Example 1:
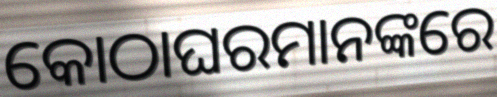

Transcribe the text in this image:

କୋଠାଘରମାନଙ୍କରେ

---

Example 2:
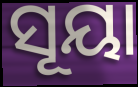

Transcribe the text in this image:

ସୂୟା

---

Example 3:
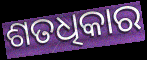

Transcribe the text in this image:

ଶତଧିକାର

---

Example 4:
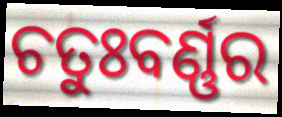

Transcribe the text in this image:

ଚତୁଃବର୍ଣ୍ଣର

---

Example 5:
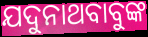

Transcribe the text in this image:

ଯଦୁନାଥବାବୁଙ୍କ